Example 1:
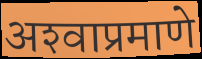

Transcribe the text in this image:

अश्वाप्रमाणे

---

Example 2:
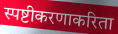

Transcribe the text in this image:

स्पष्टीकरणाकरिता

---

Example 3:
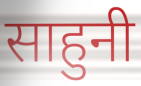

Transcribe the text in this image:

साहुनी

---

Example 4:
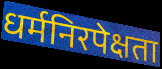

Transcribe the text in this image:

धर्मनिरपेक्षता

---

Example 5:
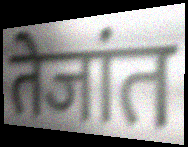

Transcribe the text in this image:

तेजांत